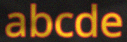
abcde